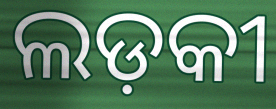
ଲଡ଼କୀ